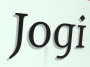
Jogi